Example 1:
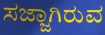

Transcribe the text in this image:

ಸಜ್ಜಾಗಿರುವ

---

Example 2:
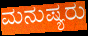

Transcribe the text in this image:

ಮನುಷ್ಯರು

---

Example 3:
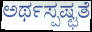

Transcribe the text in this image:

ಅರ್ಥಸ್ಪಷ್ಟತೆ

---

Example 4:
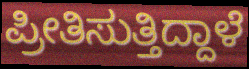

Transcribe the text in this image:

ಪ್ರೀತಿಸುತ್ತಿದ್ದಾಳೆ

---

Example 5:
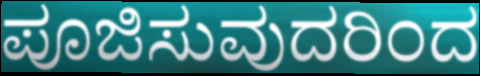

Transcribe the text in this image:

ಪೂಜಿಸುವುದರಿಂದ